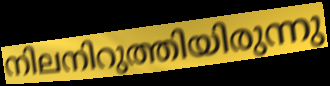
നിലനിറുത്തിയിരുന്നു